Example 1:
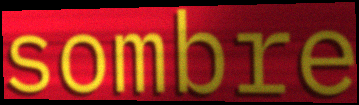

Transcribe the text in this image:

sombre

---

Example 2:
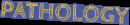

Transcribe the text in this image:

PATHOLOGY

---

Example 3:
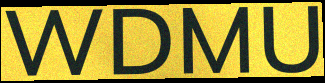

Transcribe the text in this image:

WDMU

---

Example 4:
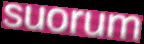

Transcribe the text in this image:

suorum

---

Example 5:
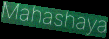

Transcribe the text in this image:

Mahashaya